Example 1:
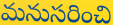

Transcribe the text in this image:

మనుసరించి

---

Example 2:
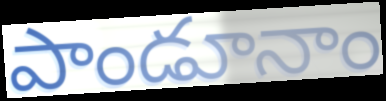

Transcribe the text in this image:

పాండూనాం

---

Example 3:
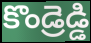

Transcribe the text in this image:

కొండ్రెడ్డి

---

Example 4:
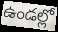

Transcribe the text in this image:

ఉండల్లో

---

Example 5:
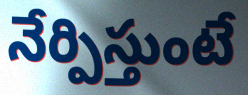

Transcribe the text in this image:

నేర్పిస్తుంటే